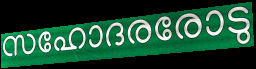
സഹോദരരോടു